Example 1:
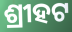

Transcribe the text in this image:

ଶ୍ରୀହଟ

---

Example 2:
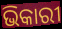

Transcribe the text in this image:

ଭିକାରୀ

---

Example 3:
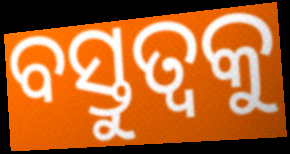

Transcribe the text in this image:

ବସ୍ତୁତ୍ଵକୁ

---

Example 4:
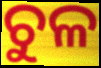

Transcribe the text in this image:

ଚୁଳ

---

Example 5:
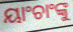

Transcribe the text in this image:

ୟାଂଚାଂଙ୍କୁ